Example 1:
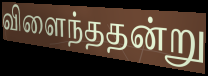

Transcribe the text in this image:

விளைந்ததன்று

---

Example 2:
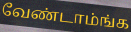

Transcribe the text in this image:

வேண்டாம்ங்க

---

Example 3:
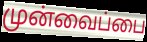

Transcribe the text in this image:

முன்வைப்பை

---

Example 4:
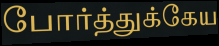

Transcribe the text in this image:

போர்த்துக்கேய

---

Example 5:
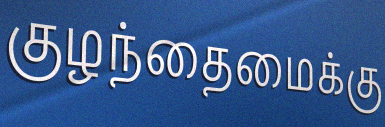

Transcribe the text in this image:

குழந்தைமைக்கு